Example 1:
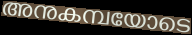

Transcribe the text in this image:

അനുകമ്പയോടെ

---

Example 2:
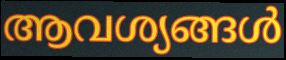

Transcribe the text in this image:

ആവശ്യങ്ങൾ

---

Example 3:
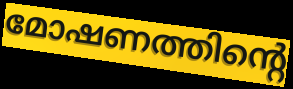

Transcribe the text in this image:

മോഷണത്തിന്റെ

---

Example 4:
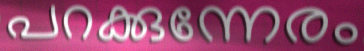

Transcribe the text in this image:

പറക്കുന്നേരം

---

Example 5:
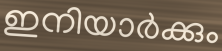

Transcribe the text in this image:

ഇനിയാർക്കും